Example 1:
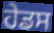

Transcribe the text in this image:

ਹੇਡਸ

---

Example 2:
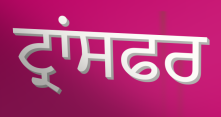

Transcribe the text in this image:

ਟ੍ਰਾਂਸਫਰ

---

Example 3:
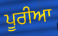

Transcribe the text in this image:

ਪੂਰੀਆ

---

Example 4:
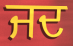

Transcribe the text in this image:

ਜਦ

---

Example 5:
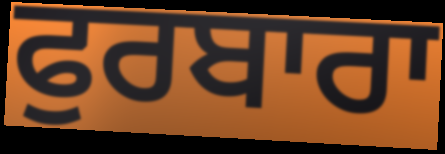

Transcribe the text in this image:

ਫੁਰਬਾਰਾ